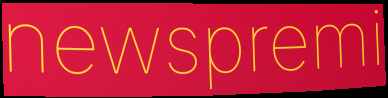
newspremi